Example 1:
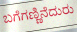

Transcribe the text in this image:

ಬಗೆಗಣ್ಣಿನೆದುರು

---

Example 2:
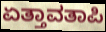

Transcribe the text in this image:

ಏತ್ತಾವತಾಪಿ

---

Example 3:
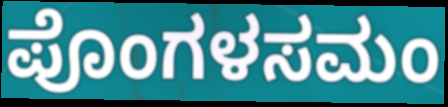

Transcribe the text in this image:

ಪೊಂಗಳಸಮಂ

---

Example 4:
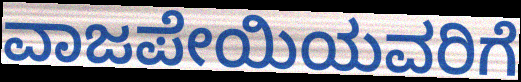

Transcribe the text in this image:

ವಾಜಪೇಯಿಯವರಿಗೆ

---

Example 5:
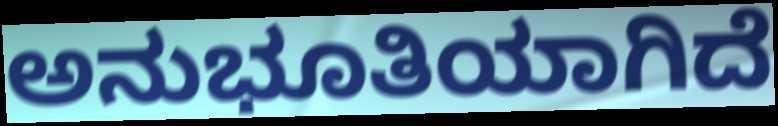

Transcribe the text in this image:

ಅನುಭೂತಿಯಾಗಿದೆ